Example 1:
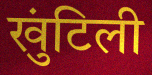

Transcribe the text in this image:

खुंटिली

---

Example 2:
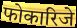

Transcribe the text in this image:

फोकारिजे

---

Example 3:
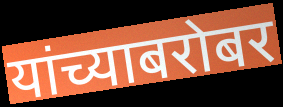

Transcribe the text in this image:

यांच्याबरोबर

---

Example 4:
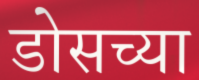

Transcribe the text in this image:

डोसच्या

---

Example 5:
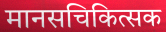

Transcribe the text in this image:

मानसचिकित्सक